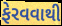
ફેરવવાથી